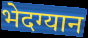
भेदग्यान